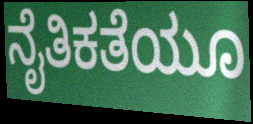
ನೈತಿಕತೆಯೂ